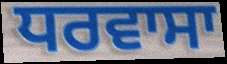
ਧਰਵਾਸਾ